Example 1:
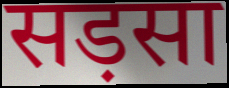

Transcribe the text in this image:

सड़सा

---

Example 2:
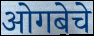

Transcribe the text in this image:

ओगबेचे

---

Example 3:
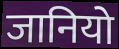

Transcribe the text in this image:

जानियो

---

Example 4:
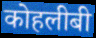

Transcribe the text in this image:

कोहलीबी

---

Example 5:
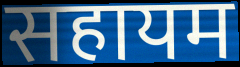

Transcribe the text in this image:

सहायम